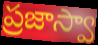
ప్రజాస్వా